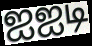
ஐஐடி